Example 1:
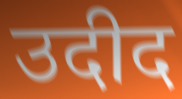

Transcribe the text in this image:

उदीद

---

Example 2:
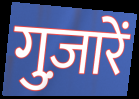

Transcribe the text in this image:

गुज़ारें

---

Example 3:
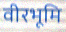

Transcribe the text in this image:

वीरभूमि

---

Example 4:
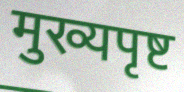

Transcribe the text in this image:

मुख्यपृष्ट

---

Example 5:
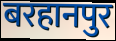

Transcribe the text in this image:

बरहानपुर